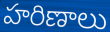
హరిణాలు